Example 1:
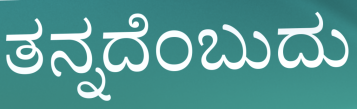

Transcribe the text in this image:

ತನ್ನದೆಂಬುದು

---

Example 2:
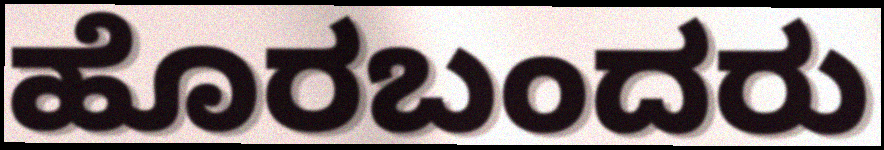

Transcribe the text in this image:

ಹೊರಬಂದರು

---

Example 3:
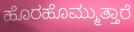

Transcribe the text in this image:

ಹೊರಹೊಮ್ಮುತ್ತಾರೆ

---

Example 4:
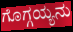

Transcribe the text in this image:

ಗೊಗ್ಗಯ್ಯನು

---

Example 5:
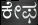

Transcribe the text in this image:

ಕೇಫ